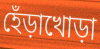
হেঁড়াখোড়া